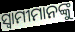
ସ୍ଵାମୀମାନଙ୍କୁ